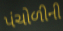
પંચોળીની